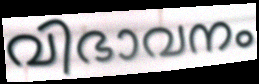
വിഭാവനം